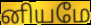
னியமே